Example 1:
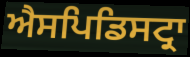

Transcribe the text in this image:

ਐਸਪਿਡਿਸਟ੍ਰਾ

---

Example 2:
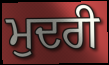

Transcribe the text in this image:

ਮੁਦਰੀ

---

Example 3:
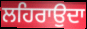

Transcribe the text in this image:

ਲਹਿਰਾਉਦਾ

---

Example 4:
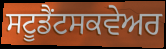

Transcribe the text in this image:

ਸਟੂਡੈਂਟਸਕਵੇਅਰ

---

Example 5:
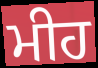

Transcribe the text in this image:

ਮੀਹ